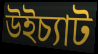
উইচ্যাট